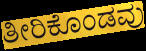
ತೀರಿಕೊಂಡವು